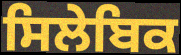
ਸਿਲੇਬਿਕ